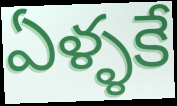
ఏళ్ళకే